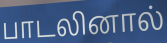
பாடலினால்